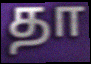
தா